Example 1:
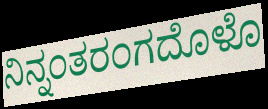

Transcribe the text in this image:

ನಿನ್ನಂತರಂಗದೊಳೊ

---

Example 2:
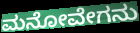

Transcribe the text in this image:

ಮನೋವೇಗನು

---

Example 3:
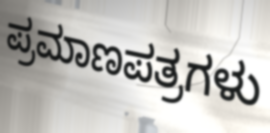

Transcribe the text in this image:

ಪ್ರಮಾಣಪತ್ರಗಳು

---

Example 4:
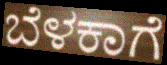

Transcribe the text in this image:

ಬೆಳಕಾಗೆ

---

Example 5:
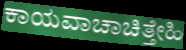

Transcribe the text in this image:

ಕಾಯವಾಚಾಚಿತ್ತೇಹಿ